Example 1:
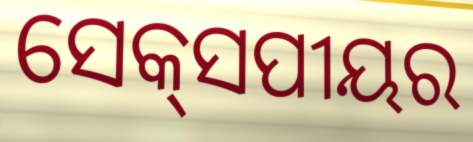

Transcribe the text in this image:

ସେକ୍‌ସପୀୟର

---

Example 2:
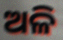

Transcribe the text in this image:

ଅଳି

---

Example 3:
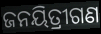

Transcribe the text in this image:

ଜନୟିତ୍ରୀଗଣ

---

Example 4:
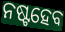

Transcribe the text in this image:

ନଷ୍ଟହେବ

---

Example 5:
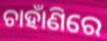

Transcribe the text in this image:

ଚାହାଁଣିରେ